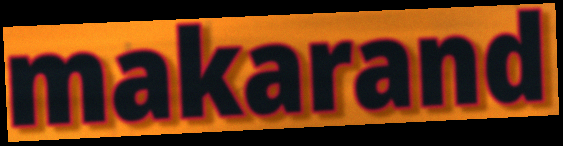
makarand